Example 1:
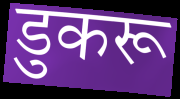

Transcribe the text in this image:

डुकरू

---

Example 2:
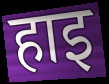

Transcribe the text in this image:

हाइ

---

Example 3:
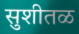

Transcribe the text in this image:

सुशीतळ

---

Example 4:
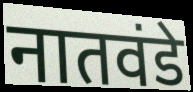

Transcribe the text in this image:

नातवंडे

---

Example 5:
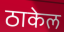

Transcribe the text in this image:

ठाकेल